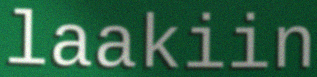
laakiin